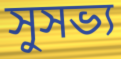
সুসভ্য